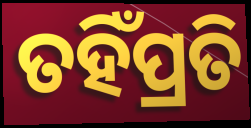
ତହିଁପ୍ରତି